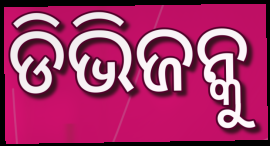
ଡିଭିଜନ୍କୁ